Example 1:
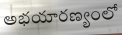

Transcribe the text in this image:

అభయారణ్యంలో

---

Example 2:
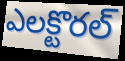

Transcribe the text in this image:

ఎలక్టొరల్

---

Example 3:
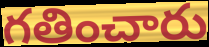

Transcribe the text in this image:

గతించారు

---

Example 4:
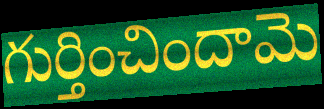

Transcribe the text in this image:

గుర్తించిందామె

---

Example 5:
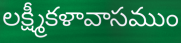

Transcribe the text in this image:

లక్ష్మీకళావాసముం